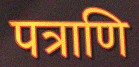
पत्राणि